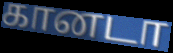
கானடா